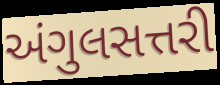
અંગુલસત્તરી